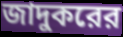
জাদুকরের